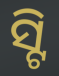
ସ୍ଟି